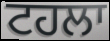
ਟਹਲਾ